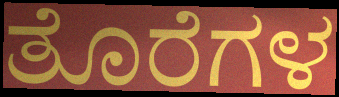
ತೊರೆಗಳ